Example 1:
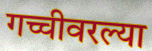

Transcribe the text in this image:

गच्चीवरल्या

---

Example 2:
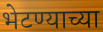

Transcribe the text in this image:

भेटण्याच्या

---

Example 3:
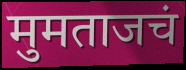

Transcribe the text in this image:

मुमताजचं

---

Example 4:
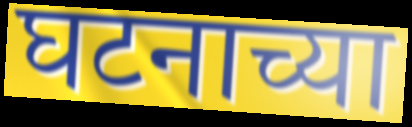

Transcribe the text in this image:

घटनाच्या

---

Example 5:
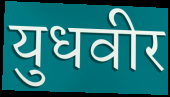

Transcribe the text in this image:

युधवीर